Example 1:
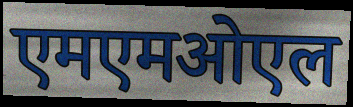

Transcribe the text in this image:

एमएमओएल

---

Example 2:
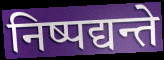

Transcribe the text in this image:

निष्पद्यन्ते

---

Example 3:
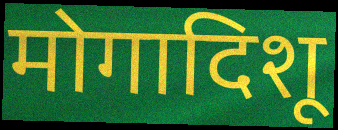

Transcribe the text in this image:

मोगादिशू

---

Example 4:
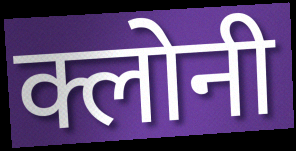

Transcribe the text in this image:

क्लोनी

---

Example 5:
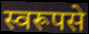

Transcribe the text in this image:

स्वरूपसे